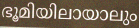
ഭൂമിയിലായാലും